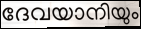
ദേവയാനിയും